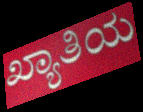
ಖ್ಯಾತಿಯ